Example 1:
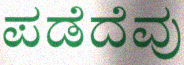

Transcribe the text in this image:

ಪಡೆದೆವು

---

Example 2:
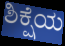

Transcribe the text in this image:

ಶಿಕ್ಷೆಯ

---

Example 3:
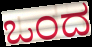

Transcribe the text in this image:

ಒಂದ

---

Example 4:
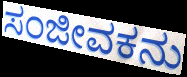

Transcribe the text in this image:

ಸಂಜೀವಕನು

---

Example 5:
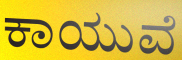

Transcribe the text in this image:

ಕಾಯುವೆ